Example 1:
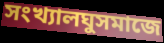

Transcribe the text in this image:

সংখ্যালঘুসমাজে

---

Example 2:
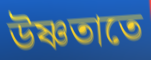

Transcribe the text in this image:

উষ্ণতাতে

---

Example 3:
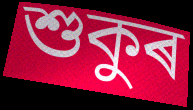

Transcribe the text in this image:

শুকুৰ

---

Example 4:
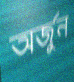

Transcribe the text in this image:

অৰ্জুন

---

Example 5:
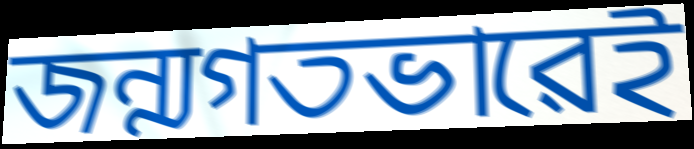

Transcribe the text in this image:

জন্মগতভাৱেই